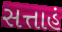
સત્તાહં